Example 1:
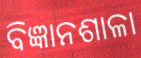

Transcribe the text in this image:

ବିଜ୍ଞାନଶାଳା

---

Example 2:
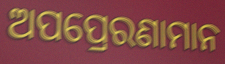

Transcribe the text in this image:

ଅପପ୍ରେରଣାମାନ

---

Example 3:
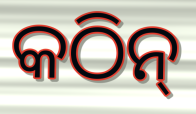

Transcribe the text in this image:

କଠିନ୍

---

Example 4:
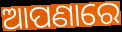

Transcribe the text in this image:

ଆପଣାରେ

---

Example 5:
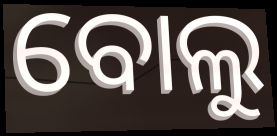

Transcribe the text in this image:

ବୋଲୁ